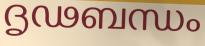
ദൃഢബന്ധം